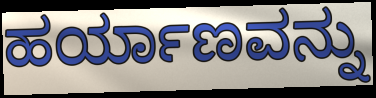
ಹರ್ಯಾಣವನ್ನು